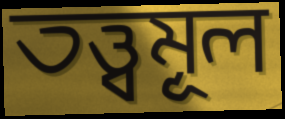
তত্ত্বমূল